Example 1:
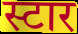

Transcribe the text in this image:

स्टार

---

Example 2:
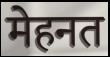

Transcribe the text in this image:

मेहनत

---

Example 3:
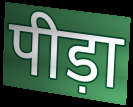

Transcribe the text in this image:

पीड़ा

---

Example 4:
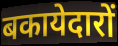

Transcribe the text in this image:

बकायेदारों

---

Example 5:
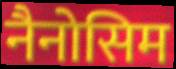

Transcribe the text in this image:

नैनोसिम